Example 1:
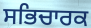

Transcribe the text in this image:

ਸਭਿਚਾਰਕ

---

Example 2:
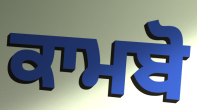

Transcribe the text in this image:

ਕਾਮਬੋ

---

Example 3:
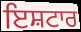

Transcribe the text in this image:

ਇਸ਼ਟਾਰ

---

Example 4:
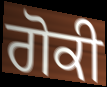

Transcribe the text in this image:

ਗੋਕੀ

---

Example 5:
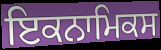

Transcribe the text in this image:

ਇਕਨਾਮਿਕਸ